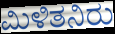
ಮಿಳಿತನಿರು